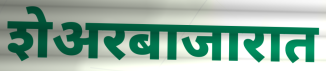
शेअरबाजारात